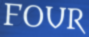
FOUR